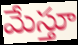
మేస్తూ